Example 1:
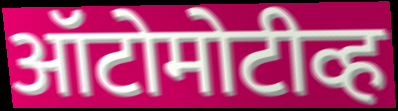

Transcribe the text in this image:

ऑटोमोटीव्ह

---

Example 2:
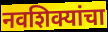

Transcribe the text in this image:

नवशिक्यांचा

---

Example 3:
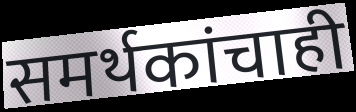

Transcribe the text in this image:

समर्थकांचाही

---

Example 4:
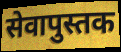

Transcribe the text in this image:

सेवापुस्तक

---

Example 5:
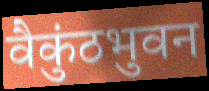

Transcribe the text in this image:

वैकुंठभुवन